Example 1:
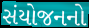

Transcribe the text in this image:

સંયોજનનો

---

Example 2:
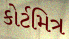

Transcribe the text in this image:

કોર્ટમિત્ર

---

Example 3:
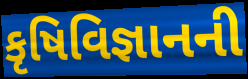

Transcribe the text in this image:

કૃષિવિજ્ઞાનની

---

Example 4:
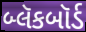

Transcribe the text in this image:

બ્લૅકબૉર્ડ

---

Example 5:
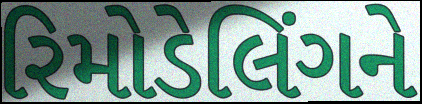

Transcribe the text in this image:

રિમોડેલિંગને